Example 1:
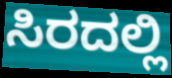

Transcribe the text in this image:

ಸಿರದಲ್ಲಿ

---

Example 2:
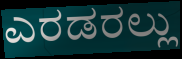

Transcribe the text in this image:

ಎರಡರಲ್ಲು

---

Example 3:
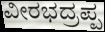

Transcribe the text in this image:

ವೀರಭದ್ರಪ್ಪ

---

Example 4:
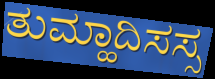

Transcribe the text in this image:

ತುಮ್ಹಾದಿಸಸ್ಸ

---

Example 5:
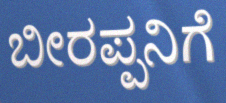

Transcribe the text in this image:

ಬೀರಪ್ಪನಿಗೆ